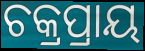
ଚକ୍ରପ୍ରାୟ